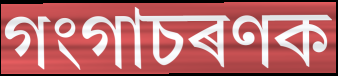
গংগাচৰণক